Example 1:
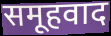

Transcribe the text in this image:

समूहवाद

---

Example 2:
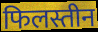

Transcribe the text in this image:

फिलस्तीन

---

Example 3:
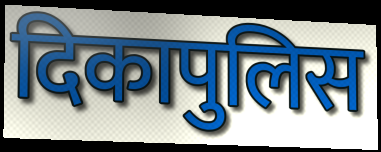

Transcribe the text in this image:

दिकापुलिस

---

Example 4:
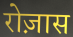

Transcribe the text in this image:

रोज़ास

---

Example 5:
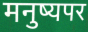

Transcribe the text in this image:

मनुष्यपर